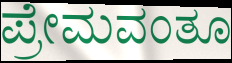
ಪ್ರೇಮವಂತೂ